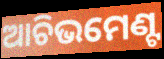
ଆଚିଭମେଣ୍ଟ